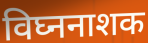
विघ्ननाशक